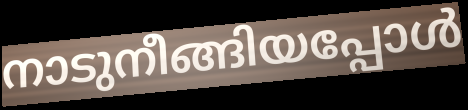
നാടുനീങ്ങിയപ്പോൾ